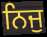
ਨਿਜੁ